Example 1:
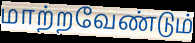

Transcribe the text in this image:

மாற்றவேண்டும்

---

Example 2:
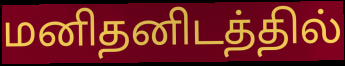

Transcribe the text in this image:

மனிதனிடத்தில்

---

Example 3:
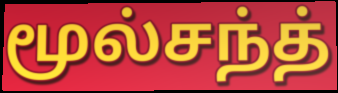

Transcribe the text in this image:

மூல்சந்த்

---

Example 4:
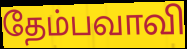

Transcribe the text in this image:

தேம்பவாவி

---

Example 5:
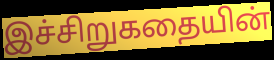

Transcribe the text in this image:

இச்சிறுகதையின்